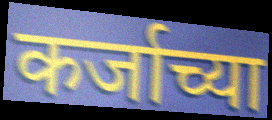
कर्जाच्या